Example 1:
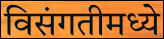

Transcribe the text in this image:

विसंगतीमध्ये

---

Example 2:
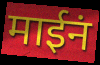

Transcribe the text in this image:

माईनं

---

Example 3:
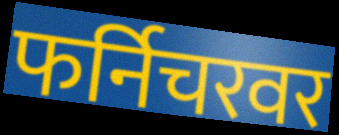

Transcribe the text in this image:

फर्निचरवर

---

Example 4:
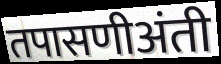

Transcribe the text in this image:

तपासणीअंती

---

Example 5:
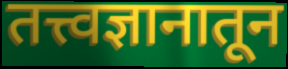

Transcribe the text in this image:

तत्त्वज्ञानातून